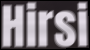
Hirsi